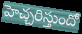
హెచ్చరిస్తుందో